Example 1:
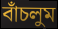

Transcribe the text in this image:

বাঁচলুম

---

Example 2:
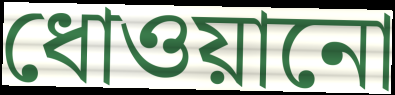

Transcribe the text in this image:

ধোওয়ানো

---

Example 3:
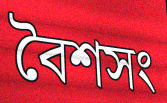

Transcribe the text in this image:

বৈশসং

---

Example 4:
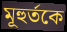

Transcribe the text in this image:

মূহুর্তকে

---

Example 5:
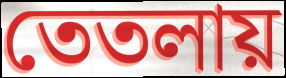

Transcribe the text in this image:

তেতলায়